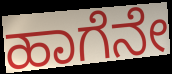
ಹಾಗೆನೇ